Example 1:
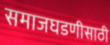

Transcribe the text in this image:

समाजघडणीसाठी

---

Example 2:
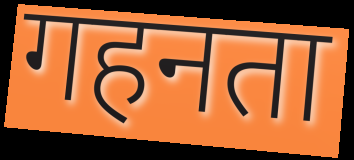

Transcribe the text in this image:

गहनता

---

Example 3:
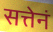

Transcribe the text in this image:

सत्तेनं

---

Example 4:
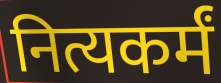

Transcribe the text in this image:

नित्यकर्मं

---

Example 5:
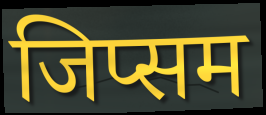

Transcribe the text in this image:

जिप्सम